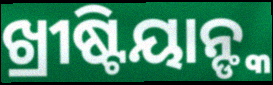
ଖ୍ରୀଷ୍ଟିୟାନ୍ଙ୍କ